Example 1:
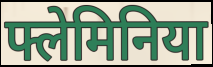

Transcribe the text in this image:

फ्लेमिनिया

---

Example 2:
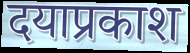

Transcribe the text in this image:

दयाप्रकाश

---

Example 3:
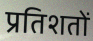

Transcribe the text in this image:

प्रतिशतों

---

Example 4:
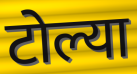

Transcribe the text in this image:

टोल्या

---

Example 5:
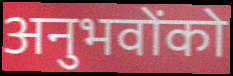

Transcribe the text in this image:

अनुभवोंको